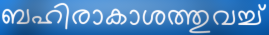
ബഹിരാകാശത്തുവച്ച്